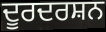
ਦੂਰਦਰਸ਼ਨ